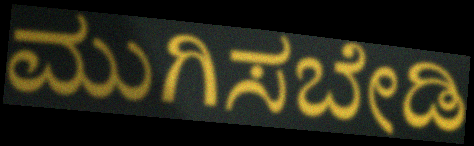
ಮುಗಿಸಬೇಡಿ